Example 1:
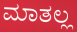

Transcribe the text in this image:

ಮಾತಲ್ಲ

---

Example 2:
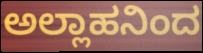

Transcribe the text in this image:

ಅಲ್ಲಾಹನಿಂದ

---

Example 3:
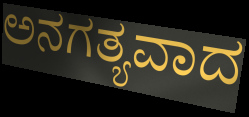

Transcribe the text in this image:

ಅನಗತ್ಯವಾದ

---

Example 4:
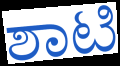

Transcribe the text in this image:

ಶಾಟಿ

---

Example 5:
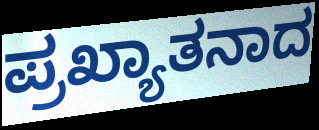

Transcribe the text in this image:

ಪ್ರಖ್ಯಾತನಾದ